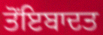
ਤੋਂਇਬਾਦਤ